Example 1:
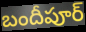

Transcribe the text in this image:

బందీపూర్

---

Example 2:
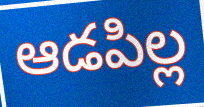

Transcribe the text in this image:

ఆడపిల్ల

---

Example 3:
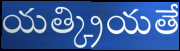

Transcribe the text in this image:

యత్క్రియతే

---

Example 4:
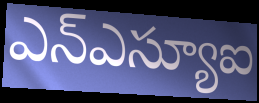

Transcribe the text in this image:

ఎన్ఎస్యూఐ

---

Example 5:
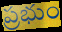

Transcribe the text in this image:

ప్రభుం